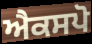
ਐਕਸਪੋ